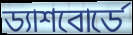
ড্যাশবোর্ডে